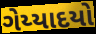
ગેય્યાદયો